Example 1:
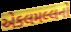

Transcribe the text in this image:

એકલમલ્લનો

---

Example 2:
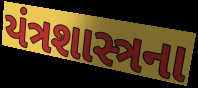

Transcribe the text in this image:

યંત્રશાસ્ત્રના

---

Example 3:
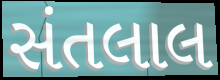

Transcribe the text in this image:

સંતલાલ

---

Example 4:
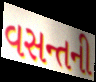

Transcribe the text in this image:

વસન્તની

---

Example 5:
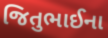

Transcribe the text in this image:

જિતુભાઈના